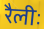
रैलीः